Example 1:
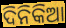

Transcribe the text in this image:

ଦିନିକିଆ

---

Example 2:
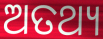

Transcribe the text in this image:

ଅତଥ୍ୟ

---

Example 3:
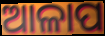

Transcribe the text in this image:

ଆଳାପ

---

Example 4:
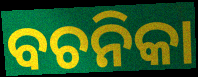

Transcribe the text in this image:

ବଚନିକା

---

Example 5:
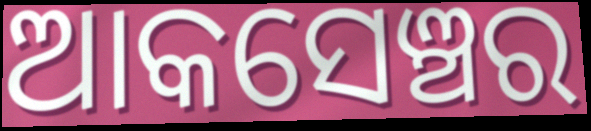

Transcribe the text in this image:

ଆକସେଞ୍ଚର